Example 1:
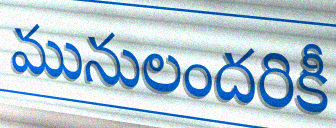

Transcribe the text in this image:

మునులందరికీ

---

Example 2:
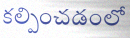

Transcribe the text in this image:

కల్పించడంలో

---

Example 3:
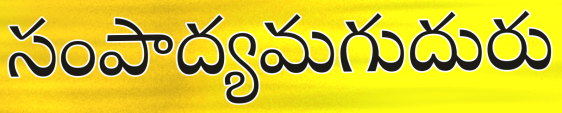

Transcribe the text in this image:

సంపాద్యమగుదురు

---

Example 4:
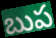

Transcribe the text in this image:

బుప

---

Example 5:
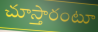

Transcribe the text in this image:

చూస్తారంటూ